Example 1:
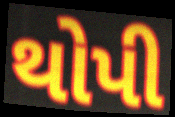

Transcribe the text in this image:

થોપી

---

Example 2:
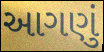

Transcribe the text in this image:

આગણું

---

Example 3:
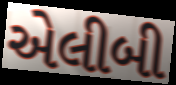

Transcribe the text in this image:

એલીબી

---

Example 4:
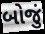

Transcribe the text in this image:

બોજું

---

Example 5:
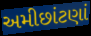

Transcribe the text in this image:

અમીછાંટણાં